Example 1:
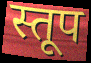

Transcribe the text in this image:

स्तूप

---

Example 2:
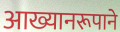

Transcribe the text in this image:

आख्यानरूपाने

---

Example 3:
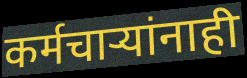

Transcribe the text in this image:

कर्मचार्‍यांनाही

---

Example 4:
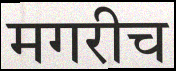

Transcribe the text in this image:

मगरीच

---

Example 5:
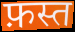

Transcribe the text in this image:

फ़स्त